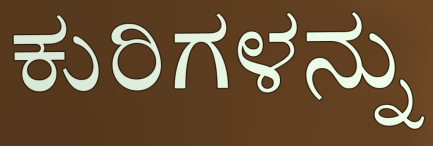
ಕುರಿಗಳನ್ನು